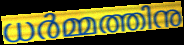
ധർമ്മത്തിനു